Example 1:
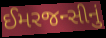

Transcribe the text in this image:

ઈમરજન્સીનું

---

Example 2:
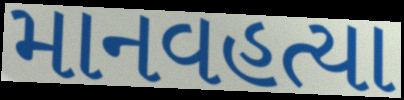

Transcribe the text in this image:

માનવહત્યા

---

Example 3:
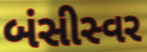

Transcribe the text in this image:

બંસીસ્વર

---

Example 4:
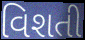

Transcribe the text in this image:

વિશતી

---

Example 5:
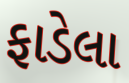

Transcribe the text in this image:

ફાડેલા